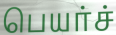
பெயர்ச்